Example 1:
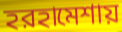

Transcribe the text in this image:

হরহামেশায়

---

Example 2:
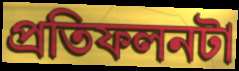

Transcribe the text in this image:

প্রতিফলনটা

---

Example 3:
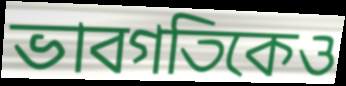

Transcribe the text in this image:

ভাবগতিকেও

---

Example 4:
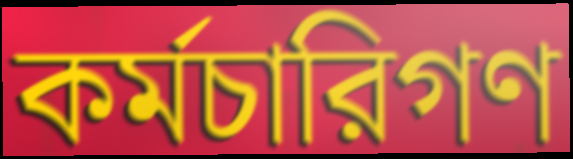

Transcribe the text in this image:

কর্মচারিগণ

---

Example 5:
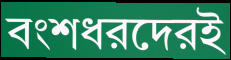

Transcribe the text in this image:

বংশধরদেরই